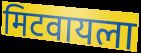
मिटवायला